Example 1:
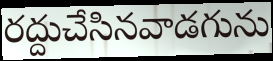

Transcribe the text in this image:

రద్దుచేసినవాడగును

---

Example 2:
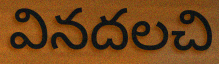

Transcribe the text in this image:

వినదలచి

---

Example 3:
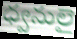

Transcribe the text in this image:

ధ్వనులై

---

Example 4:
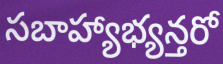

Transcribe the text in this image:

సబాహ్యాభ్యన్తరో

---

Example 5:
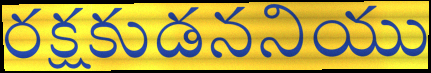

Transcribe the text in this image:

రక్షకుడననియు